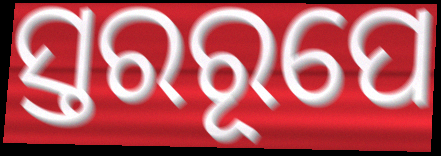
ସ୍ତରରୂପେ